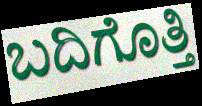
ಬದಿಗೊತ್ತಿ